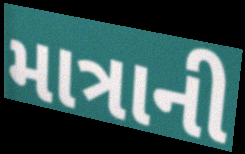
માત્રાની